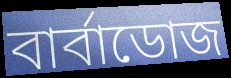
বার্বাডোজ